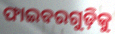
ଫାଇବରଗୁଡ଼ିକୁ